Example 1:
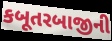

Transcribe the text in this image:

કબૂતરબાજીની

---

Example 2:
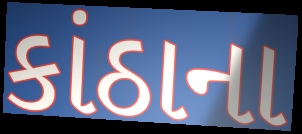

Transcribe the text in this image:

કાંઠાના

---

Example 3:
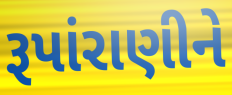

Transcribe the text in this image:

રૂપાંરાણીને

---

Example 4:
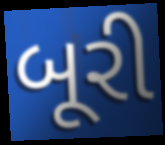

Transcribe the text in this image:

બૂરી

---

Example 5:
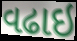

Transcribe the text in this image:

વઢાઇ